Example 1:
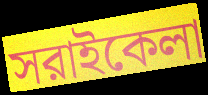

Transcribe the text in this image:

সরাইকেলা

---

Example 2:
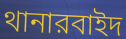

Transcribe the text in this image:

থানারবাইদ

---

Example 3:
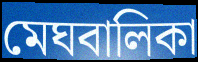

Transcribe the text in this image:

মেঘবালিকা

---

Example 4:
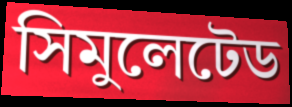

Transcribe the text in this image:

সিমুলেটেড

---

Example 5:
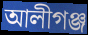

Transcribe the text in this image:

আলীগঞ্জ